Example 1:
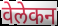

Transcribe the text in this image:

वेलेकन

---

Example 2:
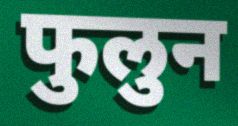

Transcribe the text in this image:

फुलुन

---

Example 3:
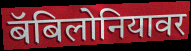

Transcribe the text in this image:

बॅबिलोनियावर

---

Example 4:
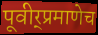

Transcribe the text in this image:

पूवीर्प्रमाणेच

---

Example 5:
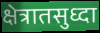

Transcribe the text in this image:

क्षेत्रातसुध्दा